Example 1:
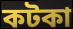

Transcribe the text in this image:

কটকা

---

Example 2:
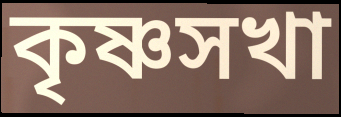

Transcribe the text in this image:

কৃষ্ণসখা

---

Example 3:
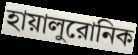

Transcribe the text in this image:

হায়ালুরোনিক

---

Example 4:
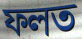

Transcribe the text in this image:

ফলত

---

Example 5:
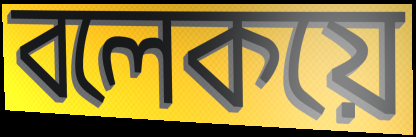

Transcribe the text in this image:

বলেকয়ে